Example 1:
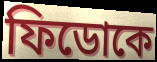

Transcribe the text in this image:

ফিডোকে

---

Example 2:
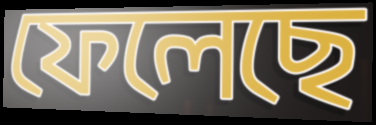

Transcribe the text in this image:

ফেলেছে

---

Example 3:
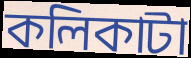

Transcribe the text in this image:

কলিকাটা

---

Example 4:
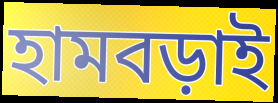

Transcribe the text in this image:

হামবড়াই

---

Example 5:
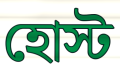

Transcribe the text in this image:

হোস্ট